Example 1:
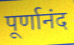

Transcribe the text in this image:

पूर्णानंद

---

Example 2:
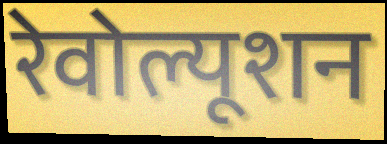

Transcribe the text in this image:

रेवोल्यूशन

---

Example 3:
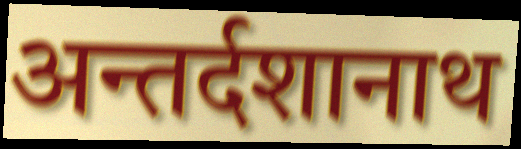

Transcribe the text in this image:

अन्तर्दशानाथ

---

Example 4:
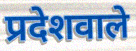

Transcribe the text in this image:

प्रदेशवाले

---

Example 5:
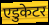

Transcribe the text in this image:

एडुकेटर